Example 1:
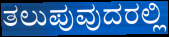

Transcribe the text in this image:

ತಲುಪುವುದರಲ್ಲಿ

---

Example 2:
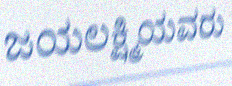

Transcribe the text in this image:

ಜಯಲಕ್ಷ್ಮಿಯವರು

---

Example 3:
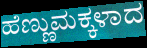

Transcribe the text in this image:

ಹೆಣ್ಣುಮಕ್ಕಳಾದ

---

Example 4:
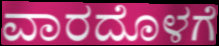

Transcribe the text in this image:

ವಾರದೊಳಗೆ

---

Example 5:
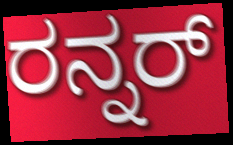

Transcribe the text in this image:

ರನ್ನರ್